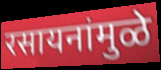
रसायनांमुळे